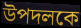
উপদলকে